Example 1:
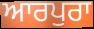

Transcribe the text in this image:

ਆਰਪੁਰਾ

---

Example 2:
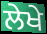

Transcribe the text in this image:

ਲੇਖੇ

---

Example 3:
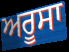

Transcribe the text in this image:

ਅਰੂਸਾ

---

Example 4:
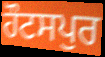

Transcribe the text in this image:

ਹੌਟਸਪੁਰ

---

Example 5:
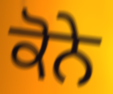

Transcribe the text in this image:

ਕੋਨੇ